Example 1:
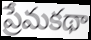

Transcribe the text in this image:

ప్రేమకథా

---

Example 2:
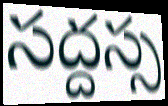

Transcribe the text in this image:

సద్దస్స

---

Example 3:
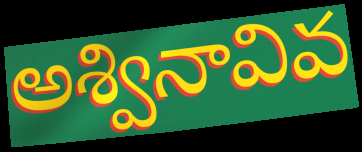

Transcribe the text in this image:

అశ్వినావివ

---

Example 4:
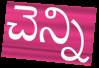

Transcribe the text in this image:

చెన్ని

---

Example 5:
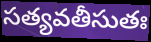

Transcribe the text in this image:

సత్యవతీసుతః